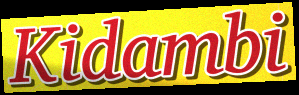
Kidambi